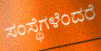
ಸಂಸ್ಥೆಗಳೆಂದರೆ